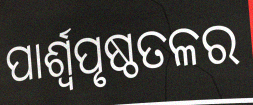
ପାର୍ଶ୍ଵପୃଷ୍ଠତଳର